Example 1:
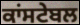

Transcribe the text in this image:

ਕਾਂਸਟੇਬਲ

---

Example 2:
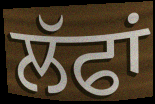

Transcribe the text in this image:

ਲੱਫਾਂ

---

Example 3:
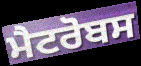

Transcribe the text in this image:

ਮੈਟਰੋਬਸ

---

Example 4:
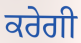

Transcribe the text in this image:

ਕਰੇਗੀ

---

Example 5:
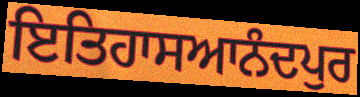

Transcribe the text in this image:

ਇਤਿਹਾਸਆਨੰਦਪੁਰ